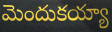
మెందుకయ్యా